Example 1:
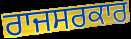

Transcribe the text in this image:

ਰਾਜਸਰਕਾਰ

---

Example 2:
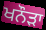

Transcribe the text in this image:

ਖਨੌੜਾ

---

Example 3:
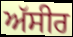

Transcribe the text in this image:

ਅੱਸੀਰ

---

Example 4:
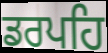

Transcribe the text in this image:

ਡਰਪਹਿ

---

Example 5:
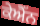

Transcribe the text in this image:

ਕੇਐੱਨ